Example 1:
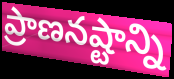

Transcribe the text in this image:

ప్రాణనష్టాన్ని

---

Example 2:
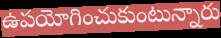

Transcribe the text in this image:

ఉపయోగించుకుంటున్నారు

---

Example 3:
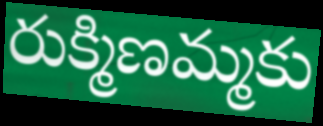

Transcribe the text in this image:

రుక్మిణమ్మకు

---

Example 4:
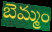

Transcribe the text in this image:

బెమ్మం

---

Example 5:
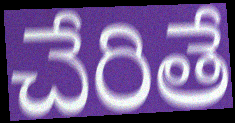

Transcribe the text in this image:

చేరితే